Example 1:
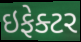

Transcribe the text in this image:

ઇફેક્ટર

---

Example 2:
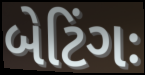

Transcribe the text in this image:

બેટિંગઃ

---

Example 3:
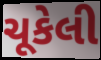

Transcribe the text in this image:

ચૂકેલી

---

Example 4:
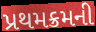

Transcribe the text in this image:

પ્રથમક્રમની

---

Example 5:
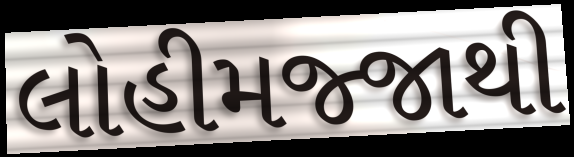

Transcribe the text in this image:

લોહીમજ્જાથી